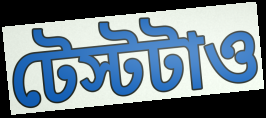
টেস্টটাও